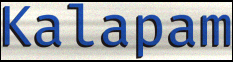
Kalapam